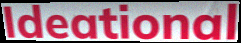
Ideational